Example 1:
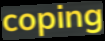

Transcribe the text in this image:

coping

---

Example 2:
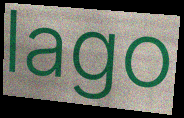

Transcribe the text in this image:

Iago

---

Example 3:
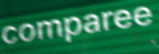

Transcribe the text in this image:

comparee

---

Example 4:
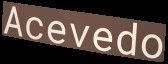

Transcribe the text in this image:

Acevedo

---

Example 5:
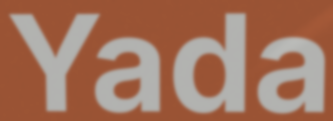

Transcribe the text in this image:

Yada